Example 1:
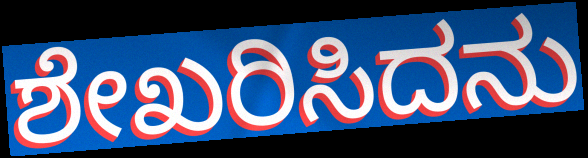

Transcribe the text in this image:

ಶೇಖರಿಸಿದನು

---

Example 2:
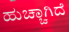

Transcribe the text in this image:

ಹುಚ್ಚಾಗಿದೆ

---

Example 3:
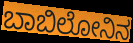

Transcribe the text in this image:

ಬಾಬಿಲೋನಿನ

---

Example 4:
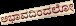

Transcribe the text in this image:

ಅಭಾವದಿಂದಲೋ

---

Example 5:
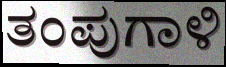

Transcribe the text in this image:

ತಂಪುಗಾಳಿ